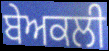
ਬੇਅਕਲੀ